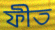
ফীত